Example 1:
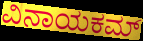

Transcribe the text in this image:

ವಿನಾಯಕಮ್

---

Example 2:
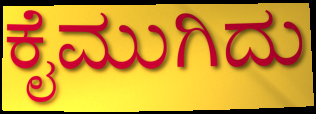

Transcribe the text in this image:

ಕೈಮುಗಿದು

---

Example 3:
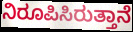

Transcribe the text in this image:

ನಿರೂಪಿಸಿರುತ್ತಾನೆ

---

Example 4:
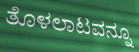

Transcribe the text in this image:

ತೊಳಲಾಟವನ್ನೂ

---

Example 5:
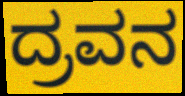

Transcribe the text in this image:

ದ್ರವನ